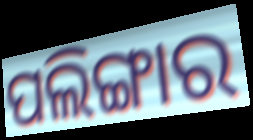
ପଲିଙ୍ଗାର